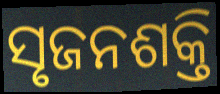
ସୃଜନଶକ୍ତି